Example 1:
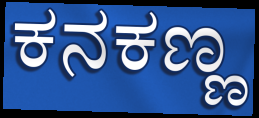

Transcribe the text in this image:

ಕನಕಣ್ಣ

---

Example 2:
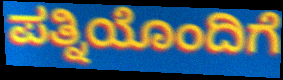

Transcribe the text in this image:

ಪತ್ನಿಯೊಂದಿಗೆ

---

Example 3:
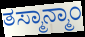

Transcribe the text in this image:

ತಸ್ಮಾನ್ಮಾಂ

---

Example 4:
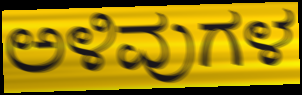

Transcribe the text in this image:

ಅಳಿವುಗಳ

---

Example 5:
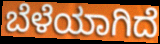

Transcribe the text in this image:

ಬೆಳೆಯಾಗಿದೆ